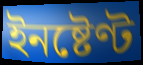
ইনষ্টেণ্ট